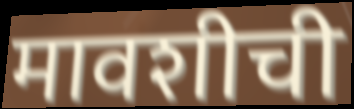
मावशीची